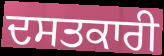
ਦਸਤਕਾਰੀ